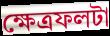
ক্ষেত্রফলটা